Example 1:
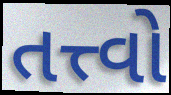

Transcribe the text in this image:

તત્ત્વો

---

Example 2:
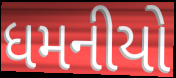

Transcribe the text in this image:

ધમનીયો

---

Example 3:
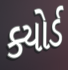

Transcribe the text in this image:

ક્યોર્ડ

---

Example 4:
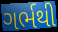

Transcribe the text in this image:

ગર્ભથી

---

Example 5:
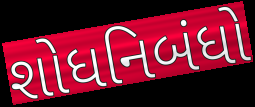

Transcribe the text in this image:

શોધનિબંધો